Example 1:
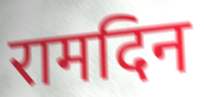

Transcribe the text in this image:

रामदिन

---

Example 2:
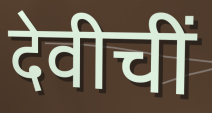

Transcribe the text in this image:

देवीचीं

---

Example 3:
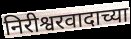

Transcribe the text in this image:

निरीश्वरवादाच्या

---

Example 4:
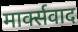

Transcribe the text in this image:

मार्क्सवाद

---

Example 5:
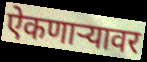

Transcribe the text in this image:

ऐकणार्‍यावर